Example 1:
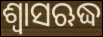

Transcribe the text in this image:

ଶ୍ୱାସଋଦ୍ଧ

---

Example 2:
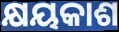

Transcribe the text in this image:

କ୍ଷୟକାଶ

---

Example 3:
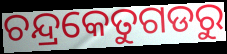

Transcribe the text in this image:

ଚନ୍ଦ୍ରକେତୁଗଡରୁ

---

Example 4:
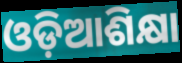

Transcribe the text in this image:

ଓଡ଼ିଆଶିକ୍ଷା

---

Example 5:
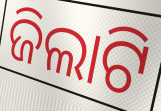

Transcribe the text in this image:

ଜିଲାଟି